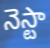
నెస్టా